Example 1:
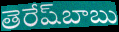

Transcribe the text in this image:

తెరేష్‌బాబు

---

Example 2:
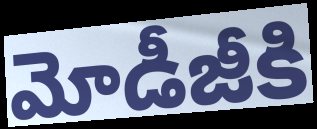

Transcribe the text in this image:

మోడీజీకి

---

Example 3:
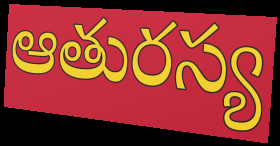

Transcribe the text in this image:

ఆతురస్య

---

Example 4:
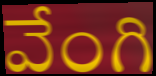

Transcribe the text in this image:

వేంగి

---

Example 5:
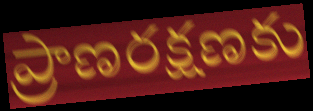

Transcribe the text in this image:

ప్రాణరక్షణకు